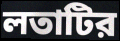
লতাটির